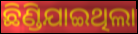
ଛିଣ୍ଡିଯାଇଥିଲା